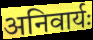
अनिवार्यः